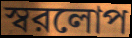
স্বরলোপ